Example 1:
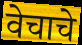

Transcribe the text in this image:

वेचाचे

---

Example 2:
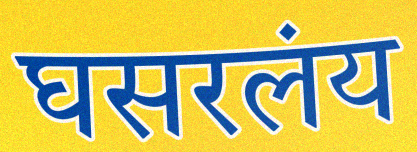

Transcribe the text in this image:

घसरलंय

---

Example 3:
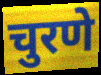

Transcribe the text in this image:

चुरणे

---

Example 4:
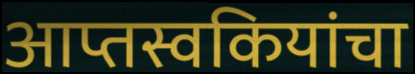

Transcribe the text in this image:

आप्तस्वकियांचा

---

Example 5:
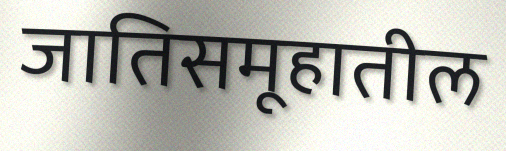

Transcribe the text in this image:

जातिसमूहातील